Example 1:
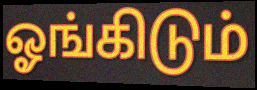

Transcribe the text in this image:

ஓங்கிடும்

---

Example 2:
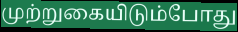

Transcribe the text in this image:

முற்றுகையிடும்போது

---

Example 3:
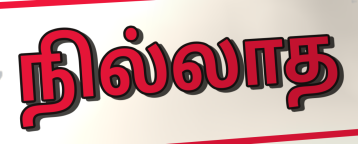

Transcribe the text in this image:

நில்லாத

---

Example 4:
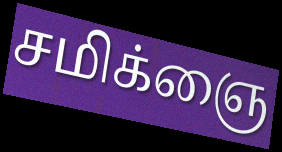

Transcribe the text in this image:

சமிக்ஞை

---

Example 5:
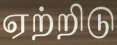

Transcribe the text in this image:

ஏற்றிடு